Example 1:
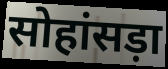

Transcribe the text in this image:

सोहांसड़ा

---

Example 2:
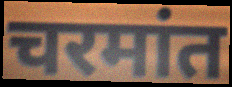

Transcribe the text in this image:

चरमांत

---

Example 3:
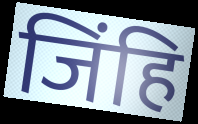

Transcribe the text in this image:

जिंहि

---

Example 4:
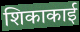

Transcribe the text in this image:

शिकाकाई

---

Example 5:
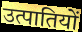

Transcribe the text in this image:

उत्पातियों